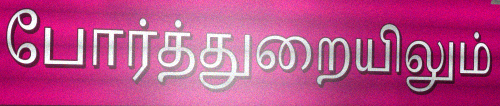
போர்த்துறையிலும்